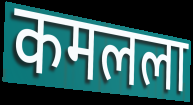
कमलला